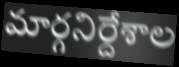
మార్గనిర్దేశాల